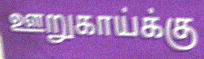
ஊறுகாய்க்கு